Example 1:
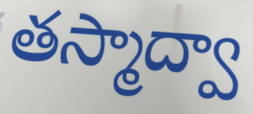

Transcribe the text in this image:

తస్మాద్వా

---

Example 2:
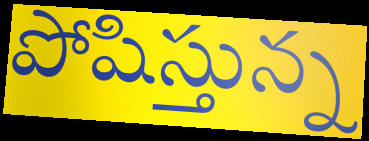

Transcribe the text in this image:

పోషిస్తున్న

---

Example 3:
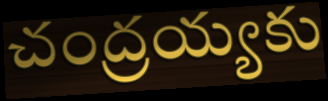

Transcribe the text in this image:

చంద్రయ్యకు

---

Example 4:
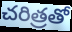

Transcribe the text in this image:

చరిత్రతో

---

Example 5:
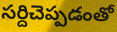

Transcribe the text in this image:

సర్దిచెప్పడంతో